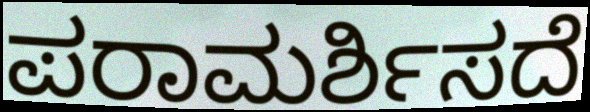
ಪರಾಮರ್ಶಿಸದೆ